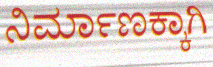
ನಿರ್ಮಾಣಕ್ಕಾಗಿ